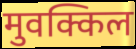
मुवक्किल